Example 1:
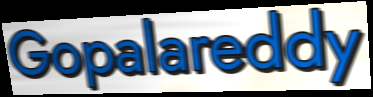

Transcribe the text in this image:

Gopalareddy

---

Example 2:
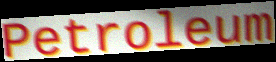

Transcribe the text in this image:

Petroleum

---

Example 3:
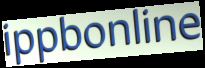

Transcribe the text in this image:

ippbonline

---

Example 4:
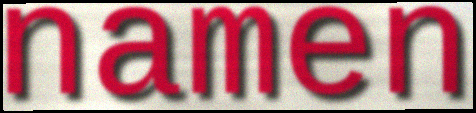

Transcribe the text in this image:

namen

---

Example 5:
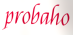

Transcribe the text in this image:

probaho